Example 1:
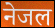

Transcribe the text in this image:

नेजल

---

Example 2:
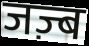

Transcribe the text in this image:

जज़्ब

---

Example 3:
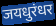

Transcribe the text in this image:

जयधुरंधर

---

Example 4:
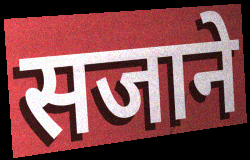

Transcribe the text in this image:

सजाने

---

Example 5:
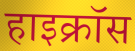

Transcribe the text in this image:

हाइक्रॉस